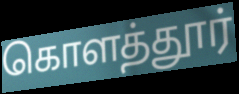
கொளத்தூர்